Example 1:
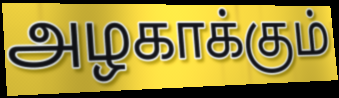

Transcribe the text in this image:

அழகாக்கும்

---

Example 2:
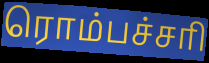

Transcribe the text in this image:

ரொம்பச்சரி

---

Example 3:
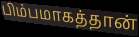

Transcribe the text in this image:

பிம்பமாகத்தான்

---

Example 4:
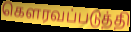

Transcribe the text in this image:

கெளரவப்படுத்தி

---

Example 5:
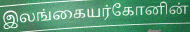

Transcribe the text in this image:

இலங்கையர்கோனின்